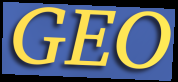
GEO